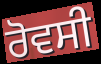
ਰੋਵਸੀ